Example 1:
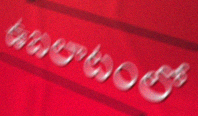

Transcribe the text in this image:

ఉబలాటంలో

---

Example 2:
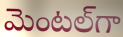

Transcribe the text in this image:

మెంటల్‌గా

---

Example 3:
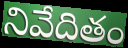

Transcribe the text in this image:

నివేదితం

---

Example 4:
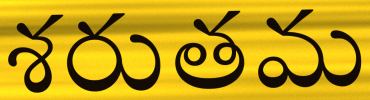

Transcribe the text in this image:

శరుతమ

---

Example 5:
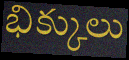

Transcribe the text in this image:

భిక్కులు